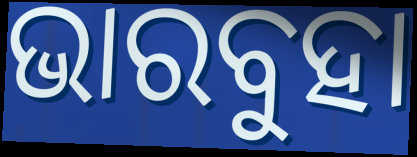
ଭାରବୁହା